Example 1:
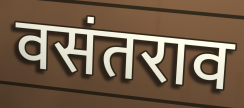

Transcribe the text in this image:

वसंतराव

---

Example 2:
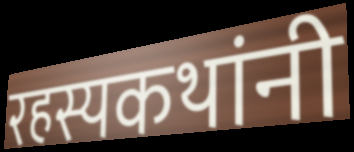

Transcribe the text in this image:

रहस्यकथांनी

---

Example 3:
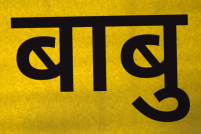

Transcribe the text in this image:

बाबु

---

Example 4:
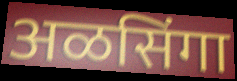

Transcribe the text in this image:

अळसिंगा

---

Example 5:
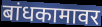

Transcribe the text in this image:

बांधकामावर